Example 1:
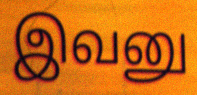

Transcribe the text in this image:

இவனு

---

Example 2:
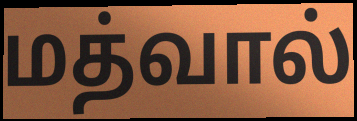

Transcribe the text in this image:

மத்வால்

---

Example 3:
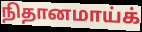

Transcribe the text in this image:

நிதானமாய்க்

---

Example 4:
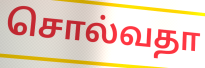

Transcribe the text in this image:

சொல்வதா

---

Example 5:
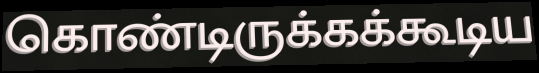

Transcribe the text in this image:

கொண்டிருக்கக்கூடிய